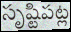
సృష్టిపట్ల